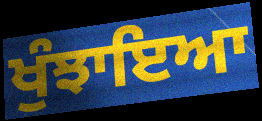
ਖੁੰਝਾਇਆ